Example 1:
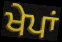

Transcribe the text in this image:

ਖੇਪਾਂ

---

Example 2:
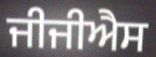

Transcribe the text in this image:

ਜੀਜੀਐਸ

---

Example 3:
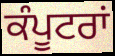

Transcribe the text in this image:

ਕੰਪੂਟਰਾਂ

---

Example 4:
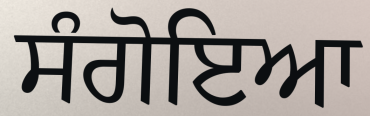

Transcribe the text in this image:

ਸੰਗੋਇਆ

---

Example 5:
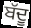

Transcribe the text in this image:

ਬੱਦੂ